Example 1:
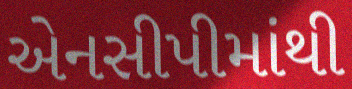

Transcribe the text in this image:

એનસીપીમાંથી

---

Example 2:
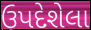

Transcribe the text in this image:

ઉપદેશેલા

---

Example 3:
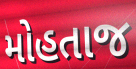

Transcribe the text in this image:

મોહતાજ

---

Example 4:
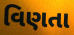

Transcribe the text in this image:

વિણતા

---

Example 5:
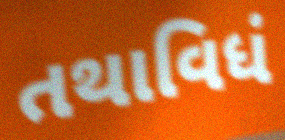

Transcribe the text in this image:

તથાવિધં